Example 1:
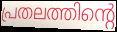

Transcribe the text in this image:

പ്രതലത്തിന്റെ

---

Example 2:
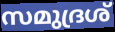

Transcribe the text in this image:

സമുദ്രശ്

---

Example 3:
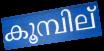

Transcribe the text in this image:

കൂമ്പില്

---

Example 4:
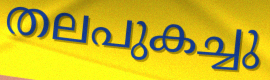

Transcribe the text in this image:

തലപുകച്ചു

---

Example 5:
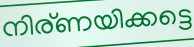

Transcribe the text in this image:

നിര്ണയിക്കട്ടെ